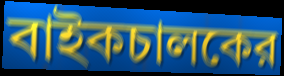
বাইকচালকের